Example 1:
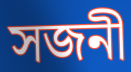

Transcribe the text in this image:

সজনী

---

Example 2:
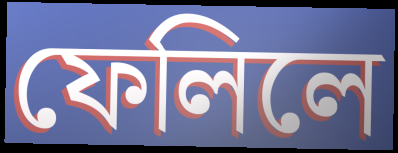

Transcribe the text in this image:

ফেলিলে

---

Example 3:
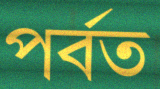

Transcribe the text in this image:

পর্বত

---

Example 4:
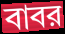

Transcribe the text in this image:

বাবর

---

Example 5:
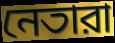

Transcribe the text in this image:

নেতারা